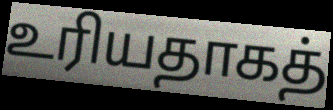
உரியதாகத்